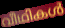
വീഥികൾ